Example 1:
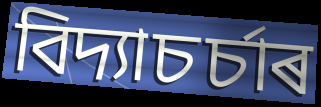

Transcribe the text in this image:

বিদ্যাচৰ্চাৰ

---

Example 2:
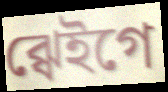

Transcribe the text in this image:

ঝ্ৱেইগে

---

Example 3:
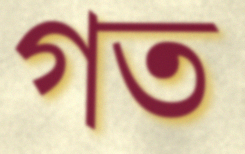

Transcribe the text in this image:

গত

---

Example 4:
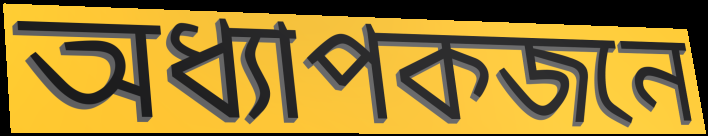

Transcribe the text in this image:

অধ্যাপকজনে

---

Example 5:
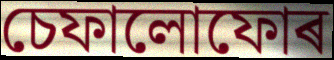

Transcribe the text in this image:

চেফালোফোৰ